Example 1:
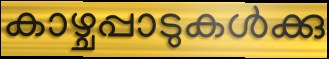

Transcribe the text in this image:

കാഴ്ചപ്പാടുകൾക്കു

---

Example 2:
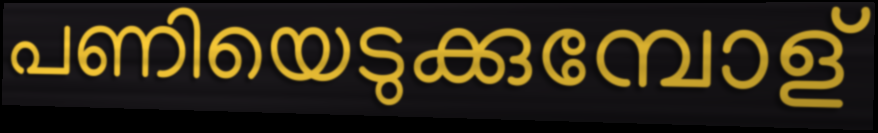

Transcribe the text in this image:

പണിയെടുക്കുമ്പോള്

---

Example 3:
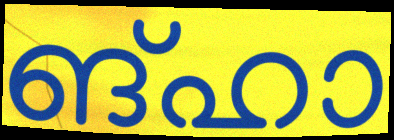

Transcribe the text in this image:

ങ്ഹാ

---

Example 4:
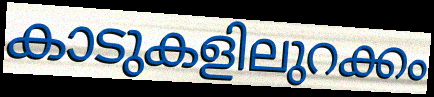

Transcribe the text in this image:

കാടുകളിലുറക്കം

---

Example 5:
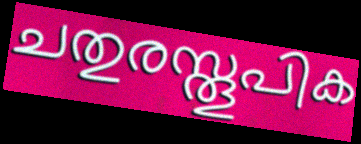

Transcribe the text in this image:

ചതുരസ്തൂപിക